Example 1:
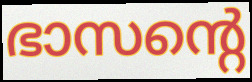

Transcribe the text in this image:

ഭാസന്റെ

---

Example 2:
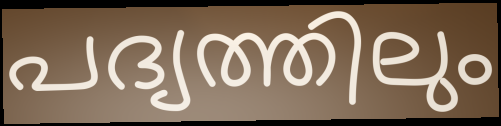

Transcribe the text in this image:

പദ്യത്തിലും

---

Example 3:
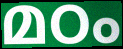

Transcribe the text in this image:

മഠം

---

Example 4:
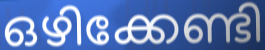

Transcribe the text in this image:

ഒഴിക്കേണ്ടി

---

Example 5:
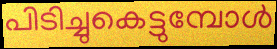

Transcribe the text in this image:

പിടിച്ചുകെട്ടുമ്പോൾ